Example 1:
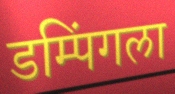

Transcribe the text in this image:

डम्पिंगला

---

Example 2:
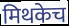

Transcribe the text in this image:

मिथकेच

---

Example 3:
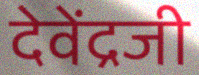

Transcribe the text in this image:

देवेंद्रजी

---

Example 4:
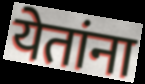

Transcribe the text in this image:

येतांना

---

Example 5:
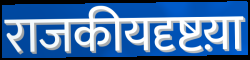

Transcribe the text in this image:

राजकीयदृष्टय़ा